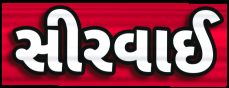
સીરવાઈ